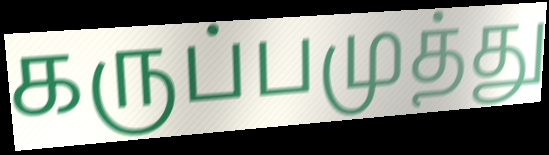
கருப்பமுத்து